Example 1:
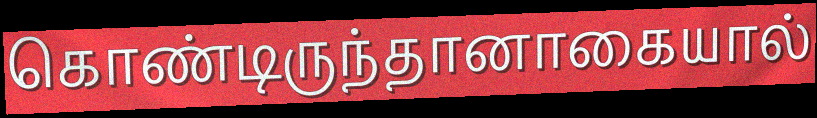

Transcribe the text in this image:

கொண்டிருந்தானாகையால்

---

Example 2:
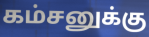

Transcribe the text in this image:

கம்சனுக்கு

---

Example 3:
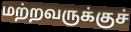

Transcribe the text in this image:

மற்றவருக்குச்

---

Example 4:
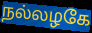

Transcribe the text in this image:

நல்லழகே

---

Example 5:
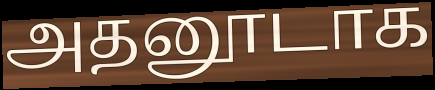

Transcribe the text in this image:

அதனூடாக